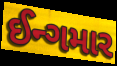
ઈન્ગમાર